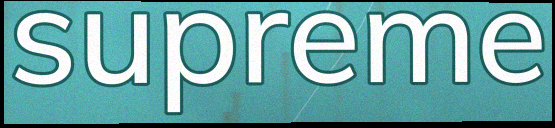
supreme